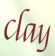
clay